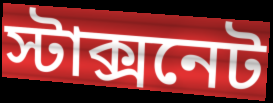
স্টাক্সনেট